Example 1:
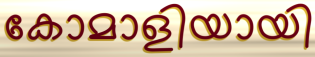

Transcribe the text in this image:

കോമാളിയായി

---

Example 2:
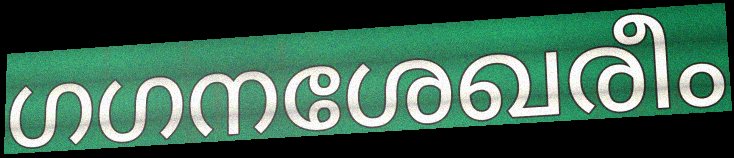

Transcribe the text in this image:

ഗഗനശേഖരീം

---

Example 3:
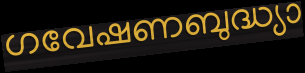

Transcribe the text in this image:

ഗവേഷണബുദ്ധ്യാ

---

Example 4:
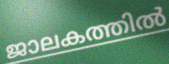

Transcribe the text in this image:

ജാലകത്തിൽ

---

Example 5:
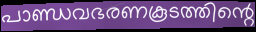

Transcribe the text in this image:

പാണ്ഡവഭരണകൂടത്തിന്റെ